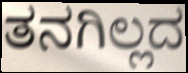
ತನಗಿಲ್ಲದ